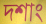
দশাং